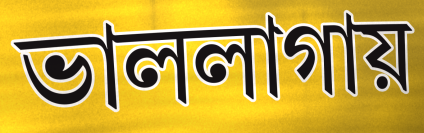
ভাললাগায়